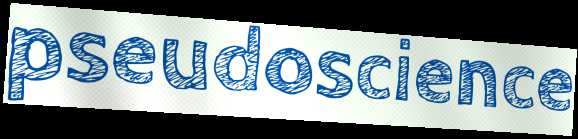
pseudoscience